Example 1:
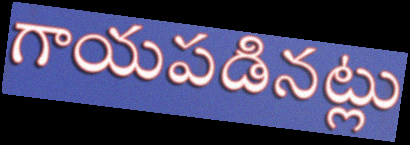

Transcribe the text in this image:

గాయపడినట్లు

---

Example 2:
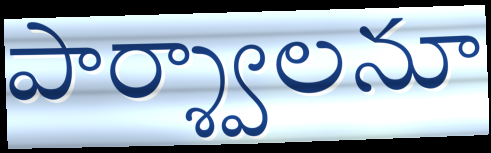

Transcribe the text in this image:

పార్శ్వాలనూ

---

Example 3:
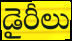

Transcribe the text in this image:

డైరీలు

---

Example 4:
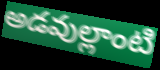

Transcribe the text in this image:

అడవుల్లాంటి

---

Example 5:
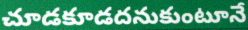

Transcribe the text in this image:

చూడకూడదనుకుంటూనే